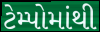
ટેમ્પોમાંથી